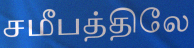
சமீபத்திலே